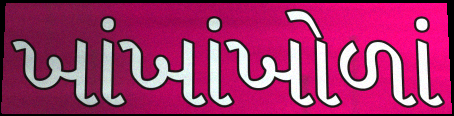
ખાંખાંખોળાં